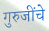
गुरुजींचे